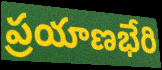
ప్రయాణభేరి